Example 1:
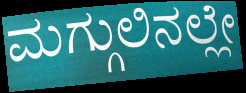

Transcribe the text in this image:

ಮಗ್ಗುಲಿನಲ್ಲೇ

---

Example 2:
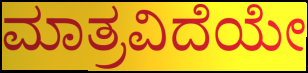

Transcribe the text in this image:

ಮಾತ್ರವಿದೆಯೇ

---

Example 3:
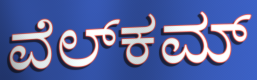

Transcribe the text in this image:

ವೆಲ್‍ಕಮ್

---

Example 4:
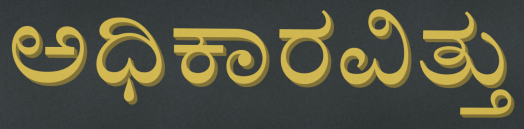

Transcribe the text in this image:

ಅಧಿಕಾರವಿತ್ತು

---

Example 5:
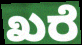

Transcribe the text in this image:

ಖರೆ